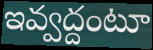
ఇవ్వద్దంటూ